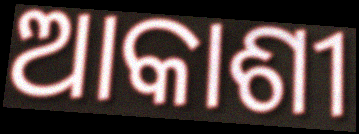
ଆକାଶୀ